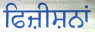
ਫਿਜ਼ੀਸ਼ਨਾਂ